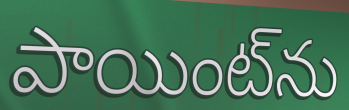
పాయింట్‌ను